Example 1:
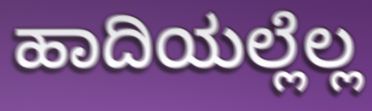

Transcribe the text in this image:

ಹಾದಿಯಲ್ಲೆಲ್ಲ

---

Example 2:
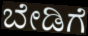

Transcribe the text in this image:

ಬೇಡಿಗೆ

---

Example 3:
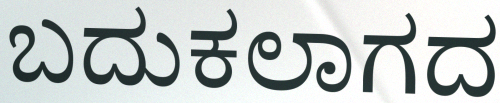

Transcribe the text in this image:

ಬದುಕಲಾಗದ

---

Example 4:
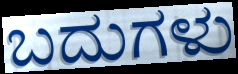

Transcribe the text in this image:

ಬದುಗಳು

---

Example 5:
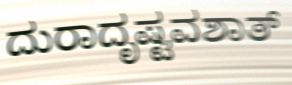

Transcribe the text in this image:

ದುರಾದೃಷ್ಟವಶಾತ್